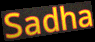
Sadha